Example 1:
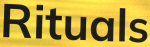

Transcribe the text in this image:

Rituals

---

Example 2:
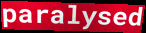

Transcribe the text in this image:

paralysed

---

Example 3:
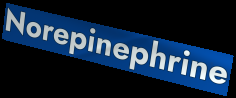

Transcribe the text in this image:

Norepinephrine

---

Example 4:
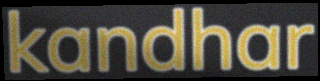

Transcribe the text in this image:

kandhar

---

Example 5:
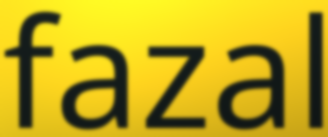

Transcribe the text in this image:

fazal